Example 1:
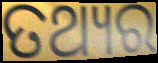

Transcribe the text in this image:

ତଥ୍ୟର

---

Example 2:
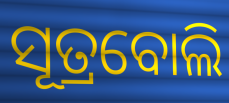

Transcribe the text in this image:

ସୂତ୍ରବୋଲି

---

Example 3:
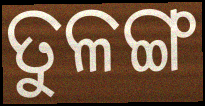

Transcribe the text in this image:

ତୁଳଙ୍ଗ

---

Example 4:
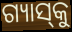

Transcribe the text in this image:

ଗ୍ୟାସ୍‌କୁ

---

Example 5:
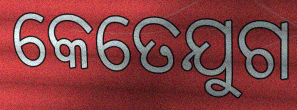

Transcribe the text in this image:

କେତେଯୁଗ